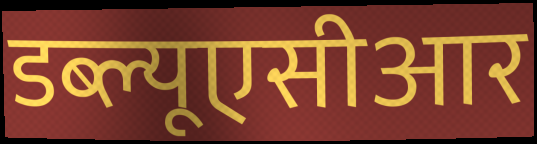
डब्ल्यूएसीआर